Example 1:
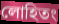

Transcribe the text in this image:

লোহিতং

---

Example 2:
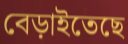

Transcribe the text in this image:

বেড়াইতেছে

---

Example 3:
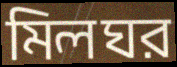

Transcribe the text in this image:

মিলঘর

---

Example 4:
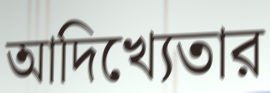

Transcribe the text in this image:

আদিখ্যেতার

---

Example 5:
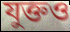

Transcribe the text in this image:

যুক্তও